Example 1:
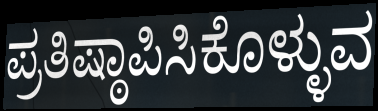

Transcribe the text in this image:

ಪ್ರತಿಷ್ಠಾಪಿಸಿಕೊಳ್ಳುವ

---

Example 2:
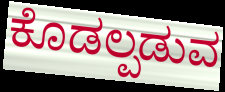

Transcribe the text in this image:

ಕೊಡಲ್ಪಡುವ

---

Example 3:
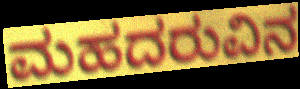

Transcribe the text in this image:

ಮಹದರುವಿನ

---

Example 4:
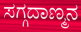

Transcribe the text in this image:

ಸಗ್ಗದಾಣ್ಮನ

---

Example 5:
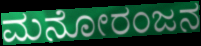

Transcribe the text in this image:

ಮನೋರಂಜನ